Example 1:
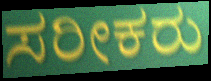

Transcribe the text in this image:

ಸರೀಕರು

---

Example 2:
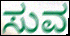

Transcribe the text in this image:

ಸುವ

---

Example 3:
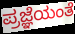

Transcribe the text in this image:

ಪ್ರಜ್ಞೆಯಂತೆ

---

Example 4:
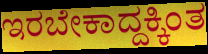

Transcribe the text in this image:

ಇರಬೇಕಾದ್ದಕ್ಕಿಂತ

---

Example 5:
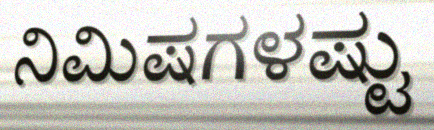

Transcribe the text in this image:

ನಿಮಿಷಗಳಷ್ಟು